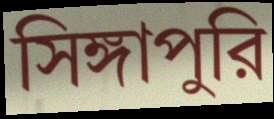
সিঙ্গাপুরি